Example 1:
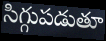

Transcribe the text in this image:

సిగ్గుపడుతూ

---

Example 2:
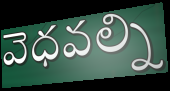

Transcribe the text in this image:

వెధవల్ని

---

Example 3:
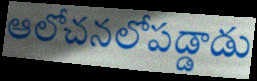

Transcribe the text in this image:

ఆలోచనలోపడ్డాడు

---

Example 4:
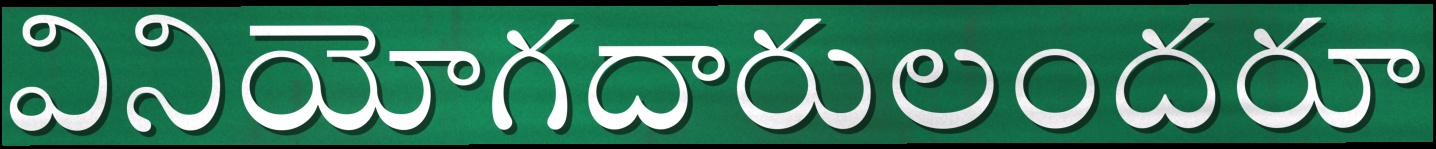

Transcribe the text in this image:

వినియోగదారులందరూ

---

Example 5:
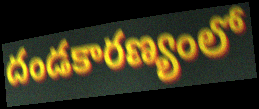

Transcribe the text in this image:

దండకారణ్యంలో